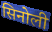
सिनोली